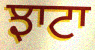
ਝਾਟਾ